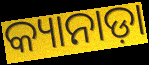
କ୍ୟାନାଡ଼ା